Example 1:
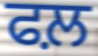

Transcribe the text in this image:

ਫਲ਼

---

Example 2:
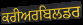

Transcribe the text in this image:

ਕਰੀਅਰਬਿਲਡਰ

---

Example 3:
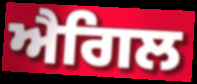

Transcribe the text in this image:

ਐਗਿਲ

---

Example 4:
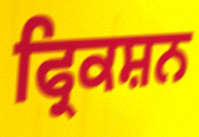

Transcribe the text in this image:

ਫ੍ਰਿਕਸ਼ਨ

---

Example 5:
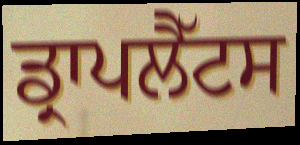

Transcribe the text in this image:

ਡ੍ਰਾਪਲੈੱਟਸ